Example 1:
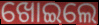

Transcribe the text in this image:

ଖୋଇଲେ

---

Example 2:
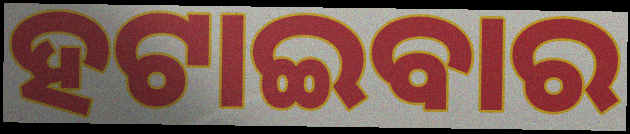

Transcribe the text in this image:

ହଟାଇବାର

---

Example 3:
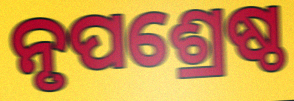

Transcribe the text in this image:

ନୃପଶ୍ରେଷ୍ଠ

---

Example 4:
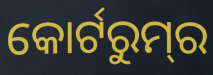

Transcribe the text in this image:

କୋର୍ଟରୁମ୍‌ର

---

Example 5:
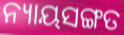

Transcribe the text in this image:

ନ୍ୟାୟସଙ୍ଗତ